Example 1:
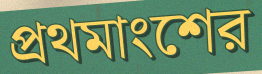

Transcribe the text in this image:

প্রথমাংশের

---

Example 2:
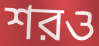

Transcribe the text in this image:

শরও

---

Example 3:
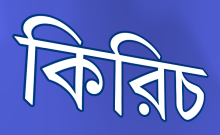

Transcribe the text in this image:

কিরিচ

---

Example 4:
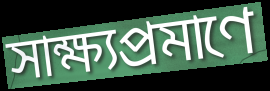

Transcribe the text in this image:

সাক্ষ্যপ্রমাণে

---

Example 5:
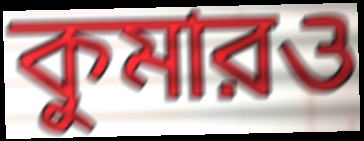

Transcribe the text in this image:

কুমারও